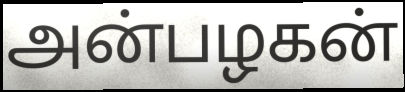
அன்பழகன்